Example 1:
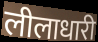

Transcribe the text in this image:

लीलाधारी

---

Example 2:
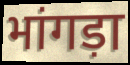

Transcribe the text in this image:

भांगड़ा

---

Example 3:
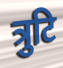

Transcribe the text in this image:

त्रुटि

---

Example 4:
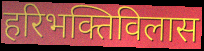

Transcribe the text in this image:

हरिभक्तिविलास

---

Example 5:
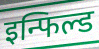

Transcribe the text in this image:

इन्फिल्ड